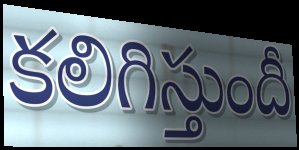
కలిగిస్తుందీ